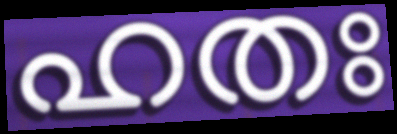
ഹതഃ